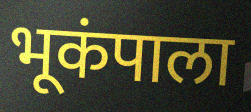
भूकंपाला